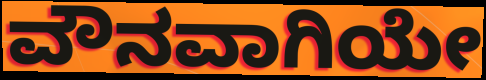
ವೌನವಾಗಿಯೇ